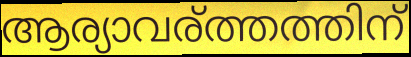
ആര്യാവര്ത്തത്തിന്